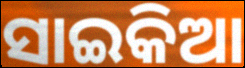
ସାଇକିଆ